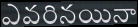
ఎవరినయినా